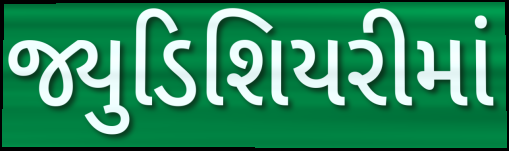
જ્યુડિશિયરીમાં